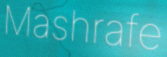
Mashrafe